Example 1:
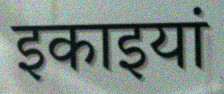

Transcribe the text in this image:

इकाइयां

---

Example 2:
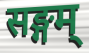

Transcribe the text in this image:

सङ्गम्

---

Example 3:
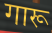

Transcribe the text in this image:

गारू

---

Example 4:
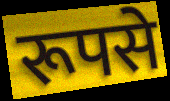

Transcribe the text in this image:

रूपसे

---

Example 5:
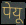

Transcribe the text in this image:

पेयू